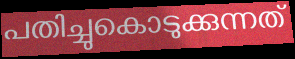
പതിച്ചുകൊടുക്കുന്നത്